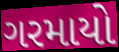
ગરમાયો